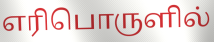
எரிபொருளில்